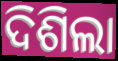
ଦିଶିଲା